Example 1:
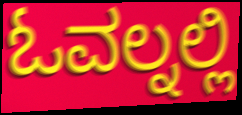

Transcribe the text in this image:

ಓವಲ್ನಲ್ಲಿ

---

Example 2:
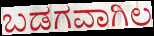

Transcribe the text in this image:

ಬಡಗವಾಗಿಲ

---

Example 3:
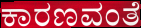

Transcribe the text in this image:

ಕಾರಣವಂತೆ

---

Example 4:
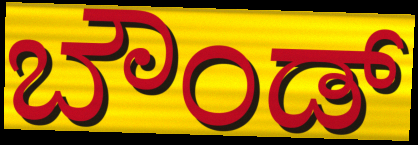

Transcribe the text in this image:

ಬೌಂಡ್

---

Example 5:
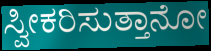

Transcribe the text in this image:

ಸ್ವೀಕರಿಸುತ್ತಾನೋ